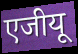
एजीयू